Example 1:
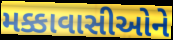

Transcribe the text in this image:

મક્કાવાસીઓને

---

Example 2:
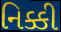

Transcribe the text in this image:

નિક્કી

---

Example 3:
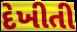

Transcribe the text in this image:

દેખીતી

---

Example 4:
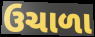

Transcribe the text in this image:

ઉચાળા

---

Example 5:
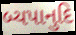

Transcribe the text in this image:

બ્યપાનુદિ